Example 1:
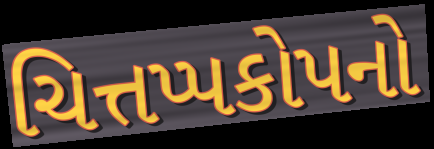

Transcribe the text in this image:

ચિત્તપ્પકોપનો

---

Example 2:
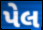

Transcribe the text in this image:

પેલ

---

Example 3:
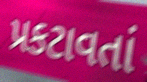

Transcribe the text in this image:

પ્રકટાવતાં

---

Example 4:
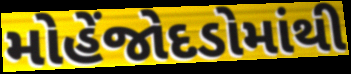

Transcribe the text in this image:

મોહેંજોદડોમાંથી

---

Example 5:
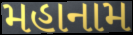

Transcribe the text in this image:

મહાનામ